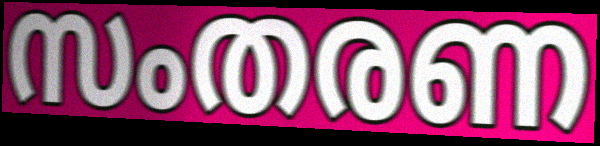
സംതരണ